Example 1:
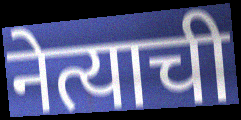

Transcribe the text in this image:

नेत्याची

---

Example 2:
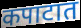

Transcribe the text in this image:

कपाटात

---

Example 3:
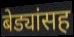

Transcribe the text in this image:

बेड्यांसह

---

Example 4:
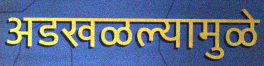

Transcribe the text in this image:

अडखळल्यामुळे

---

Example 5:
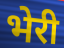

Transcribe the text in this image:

भेरी